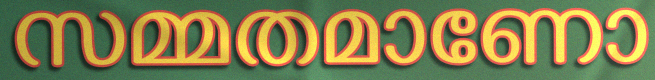
സമ്മതമാണോ